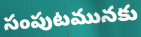
సంపుటమునకు